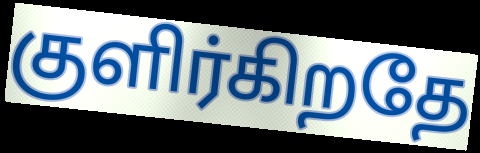
குளிர்கிறதே